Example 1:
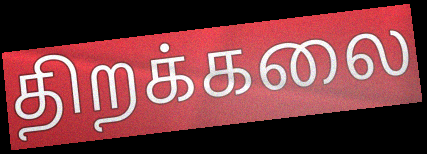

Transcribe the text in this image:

திறக்கலை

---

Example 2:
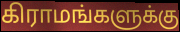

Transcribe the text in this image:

கிராமங்களுக்கு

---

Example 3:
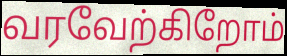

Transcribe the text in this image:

வரவேற்கிறோம்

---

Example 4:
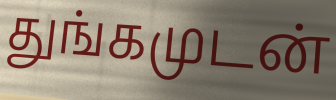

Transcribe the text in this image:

துங்கமுடன்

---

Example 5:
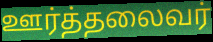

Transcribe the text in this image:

ஊர்த்தலைவர்